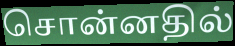
சொன்னதில்